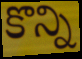
కొన్ని